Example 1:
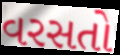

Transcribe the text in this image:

વરસતો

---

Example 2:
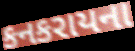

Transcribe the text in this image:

કનકરાયના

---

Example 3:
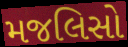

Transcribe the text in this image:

મજલિસો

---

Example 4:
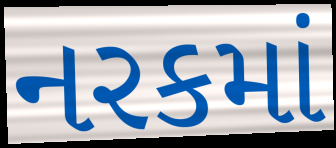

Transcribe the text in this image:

નરકમાં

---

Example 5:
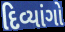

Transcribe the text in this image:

દિવ્યાંગો